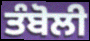
ਤੰਬੋਲੀ